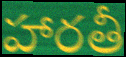
హారతీ